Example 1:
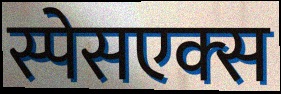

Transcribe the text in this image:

स्‍पेसएक्‍स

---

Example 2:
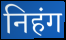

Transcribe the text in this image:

निहंग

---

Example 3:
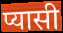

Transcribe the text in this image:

प्यासी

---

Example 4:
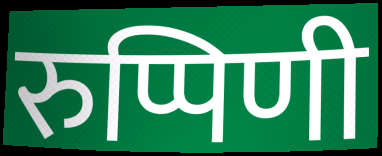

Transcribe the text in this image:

रुप्पिणी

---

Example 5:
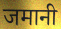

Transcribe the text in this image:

जमानी